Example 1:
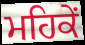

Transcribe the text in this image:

ਮਹਿਕੇਂ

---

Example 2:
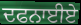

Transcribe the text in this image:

ਦਫਨਾਈਏ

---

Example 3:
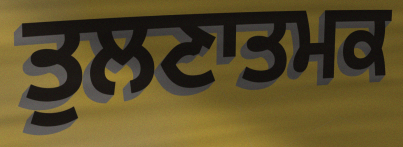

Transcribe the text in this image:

ਤੁਲਣਾਤਮਕ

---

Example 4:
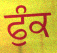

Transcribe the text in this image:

ਫੁੰਕ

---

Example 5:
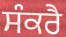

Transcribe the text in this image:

ਸੰਕਰੈ